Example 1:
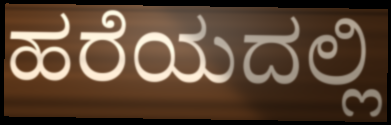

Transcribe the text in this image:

ಹರೆಯದಲ್ಲಿ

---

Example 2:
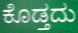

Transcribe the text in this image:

ಕೊಡ್ತದು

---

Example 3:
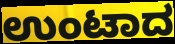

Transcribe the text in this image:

ಉಂಟಾದ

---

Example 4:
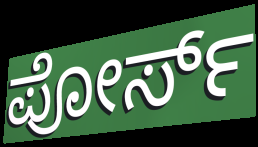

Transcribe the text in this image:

ಪೋರ್ಸ್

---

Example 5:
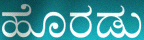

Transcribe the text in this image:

ಹೊರಡು